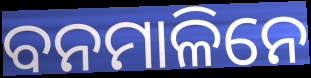
ବନମାଳିନେ